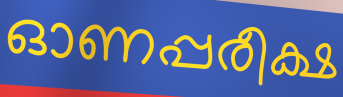
ഓണപ്പരീക്ഷ